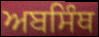
ਅਬਸਿੰਥ